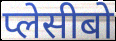
प्लेसीबो